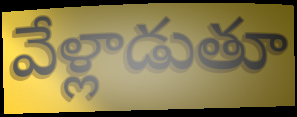
వేళ్లాడుతూ